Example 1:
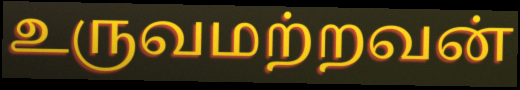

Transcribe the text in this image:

உருவமற்றவன்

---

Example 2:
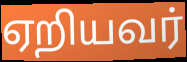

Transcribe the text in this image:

ஏறியவர்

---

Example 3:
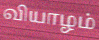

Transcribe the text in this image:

வியாழம்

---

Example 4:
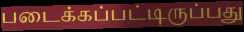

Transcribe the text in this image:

படைக்கப்பட்டிருப்பது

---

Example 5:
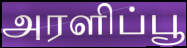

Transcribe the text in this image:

அரளிப்பூ